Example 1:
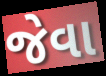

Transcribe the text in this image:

જેવા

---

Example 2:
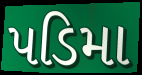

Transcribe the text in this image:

પડિમા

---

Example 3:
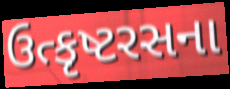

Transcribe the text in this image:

ઉત્કૃષ્ટરસના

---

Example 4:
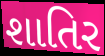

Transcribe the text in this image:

શાતિર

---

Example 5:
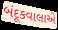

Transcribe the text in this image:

બંદૂકવાલાએ